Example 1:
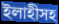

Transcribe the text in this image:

ইলাহীসহ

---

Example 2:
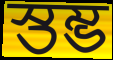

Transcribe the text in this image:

স্তম্ভ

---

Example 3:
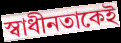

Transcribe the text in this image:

স্বাধীনতাকেই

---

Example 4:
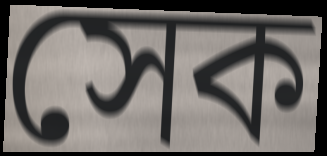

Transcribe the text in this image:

সেক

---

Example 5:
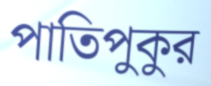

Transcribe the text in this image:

পাতিপুকুর